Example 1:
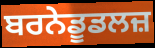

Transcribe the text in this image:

ਬਰਨੇਡੂਡਲਜ਼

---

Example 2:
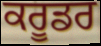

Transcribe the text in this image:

ਕਰੂਡਰ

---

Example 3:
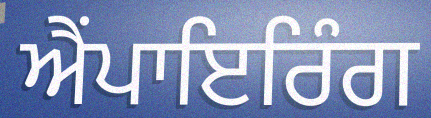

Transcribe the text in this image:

ਐਂਪਾਇਰਿੰਗ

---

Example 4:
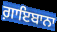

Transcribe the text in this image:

ਗ਼ਾਇਬਾਨਾ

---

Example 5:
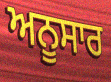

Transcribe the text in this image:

ਅਨੂਸਾਰ